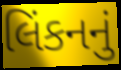
લિંકનનું